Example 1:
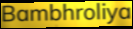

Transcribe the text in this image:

Bambhroliya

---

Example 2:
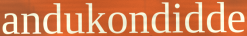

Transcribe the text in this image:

andukondidde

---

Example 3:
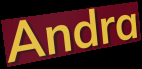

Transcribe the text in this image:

Andra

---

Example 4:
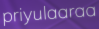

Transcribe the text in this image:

priyulaaraa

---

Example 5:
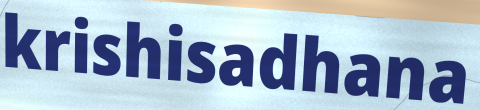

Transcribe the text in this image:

krishisadhana